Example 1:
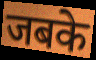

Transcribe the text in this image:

जबके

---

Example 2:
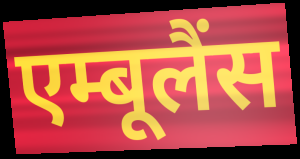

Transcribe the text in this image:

एम्बूलैंस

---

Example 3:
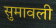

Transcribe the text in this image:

सुमावली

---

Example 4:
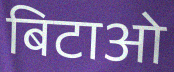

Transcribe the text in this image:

बिटाओ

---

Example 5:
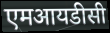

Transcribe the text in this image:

एमआयडीसी